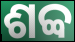
ଶବ୍ବ